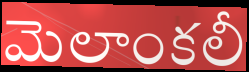
మెలాంకలీ